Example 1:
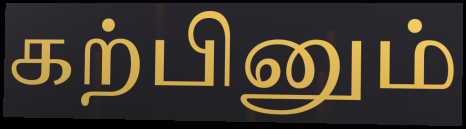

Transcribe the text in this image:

கற்பினும்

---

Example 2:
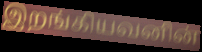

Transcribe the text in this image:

இறங்கியவனின்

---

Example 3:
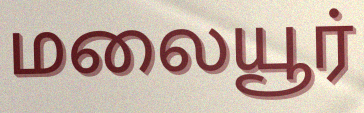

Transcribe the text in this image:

மலையூர்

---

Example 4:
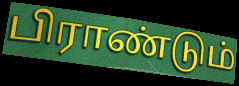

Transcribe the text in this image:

பிராண்டும்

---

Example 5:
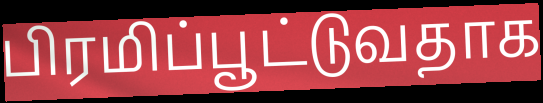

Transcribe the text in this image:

பிரமிப்பூட்டுவதாக